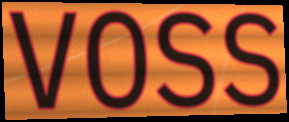
VOSS